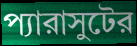
প্যারাসুটের